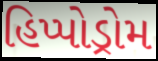
હિપ્પોડ્રોમ